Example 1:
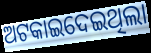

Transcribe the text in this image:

ଅଟକାଇଦେଇଥିଲା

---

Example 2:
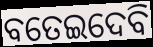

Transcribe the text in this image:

ବତେଇଦେବି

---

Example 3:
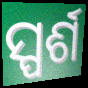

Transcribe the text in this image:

ସ୍ପର୍ଶ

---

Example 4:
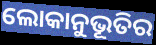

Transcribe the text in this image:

ଲୋକାନୁଭୂତିର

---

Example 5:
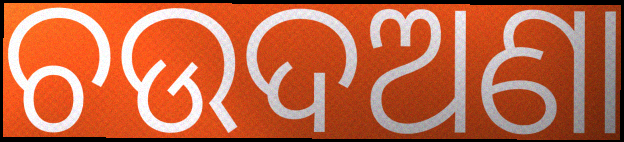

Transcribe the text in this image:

ଚଉଦଅଣା